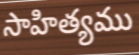
సాహిత్యము